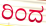
ರಿಂದ